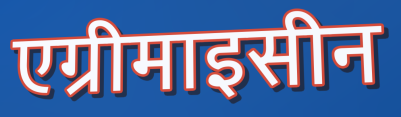
एग्रीमाइसीन